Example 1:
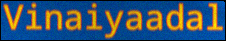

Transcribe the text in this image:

Vinaiyaadal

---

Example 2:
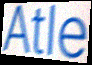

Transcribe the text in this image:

Atle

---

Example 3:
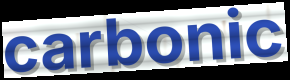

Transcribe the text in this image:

carbonic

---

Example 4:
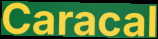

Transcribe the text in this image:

Caracal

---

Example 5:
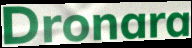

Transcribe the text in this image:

Dronara